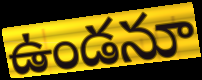
ఉండనూ